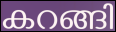
കറങ്ങി